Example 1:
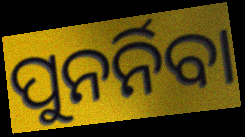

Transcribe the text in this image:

ପୁନର୍ନିବା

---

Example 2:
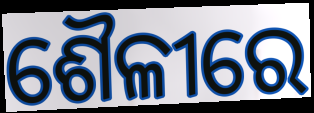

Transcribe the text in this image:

ଶୈଳୀରେ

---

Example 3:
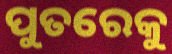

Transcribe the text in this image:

ପୁତରେକୁ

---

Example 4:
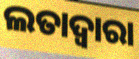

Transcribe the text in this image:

ଲତାଦ୍ୱାରା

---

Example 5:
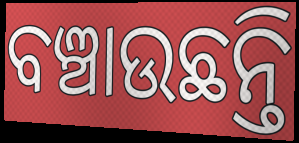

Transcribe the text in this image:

ବଞ୍ଚାଉଛନ୍ତି